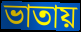
ভাতায়